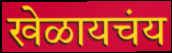
खेळायचंय